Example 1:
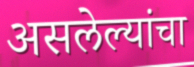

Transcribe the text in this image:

असलेल्यांचा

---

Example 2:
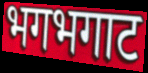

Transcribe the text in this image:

भगभगाट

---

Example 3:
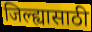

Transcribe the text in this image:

जिल्ह्यासाठी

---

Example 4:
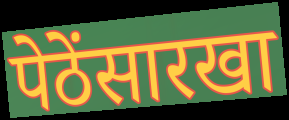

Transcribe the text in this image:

पेठेंसारखा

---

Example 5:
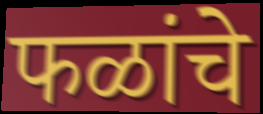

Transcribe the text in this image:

फळांचे